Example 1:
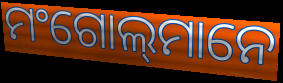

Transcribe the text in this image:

ମଂଗୋଲ୍‍ମାନେ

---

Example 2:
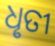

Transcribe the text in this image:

ଧୃତୀ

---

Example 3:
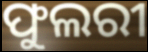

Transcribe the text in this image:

ଫୁଲରୀ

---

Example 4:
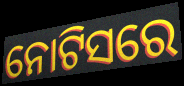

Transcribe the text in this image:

ନୋଟିସରେ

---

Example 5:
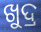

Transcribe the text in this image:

ଖୁଦ୍ର